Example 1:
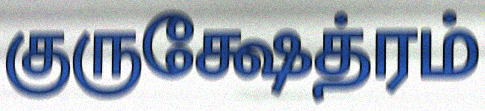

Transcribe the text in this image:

குருக்ஷேத்ரம்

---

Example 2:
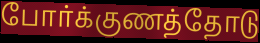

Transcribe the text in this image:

போர்க்குணத்தோடு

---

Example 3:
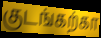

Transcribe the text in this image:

குடங்கற்கா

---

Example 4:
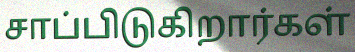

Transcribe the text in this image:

சாப்பிடுகிறார்கள்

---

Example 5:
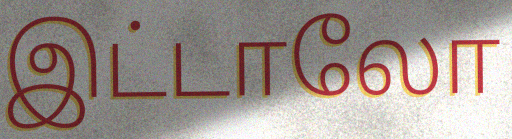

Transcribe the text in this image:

இட்டாலோ